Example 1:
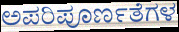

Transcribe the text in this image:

ಅಪರಿಪೂರ್ಣತೆಗಳ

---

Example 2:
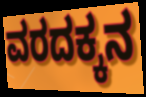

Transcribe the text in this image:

ವರದಕ್ಕನ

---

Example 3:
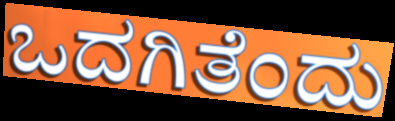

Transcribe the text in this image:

ಒದಗಿತೆಂದು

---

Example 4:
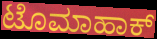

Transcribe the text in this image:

ಟೊಮಾಹಾಕ್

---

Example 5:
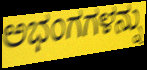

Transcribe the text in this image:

ಅಭಂಗಗಳನ್ನು